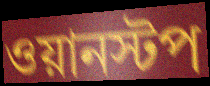
ওয়ানস্টপ